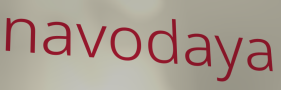
navodaya